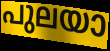
പുലയാ